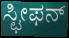
ಸ್ಟೀಫನ್